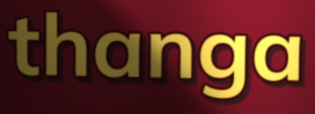
thanga